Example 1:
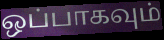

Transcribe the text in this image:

ஒப்பாகவும்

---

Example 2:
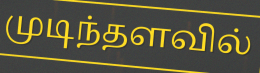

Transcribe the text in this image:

முடிந்தளவில்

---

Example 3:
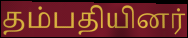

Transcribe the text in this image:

தம்பதியினர்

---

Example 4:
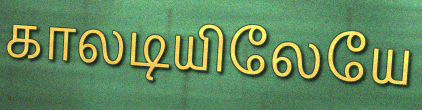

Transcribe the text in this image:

காலடியிலேயே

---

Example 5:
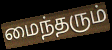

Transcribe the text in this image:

மைந்தரும்